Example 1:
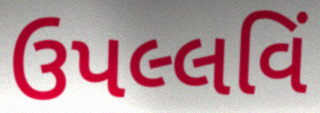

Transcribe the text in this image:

ઉપલ્લવિં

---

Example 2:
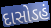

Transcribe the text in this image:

દાસોઽહં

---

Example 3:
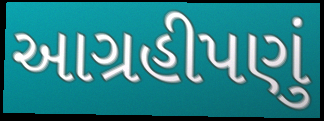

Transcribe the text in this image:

આગ્રહીપણું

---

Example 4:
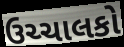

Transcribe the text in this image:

ઉચ્ચાલકો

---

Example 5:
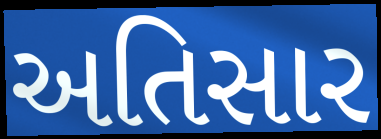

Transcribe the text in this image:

અતિસાર